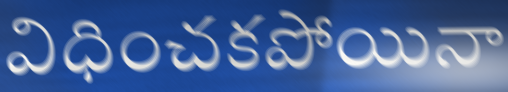
విధించకపోయినా